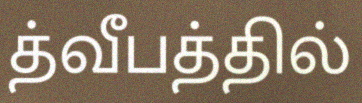
த்வீபத்தில்